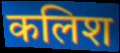
कलिश